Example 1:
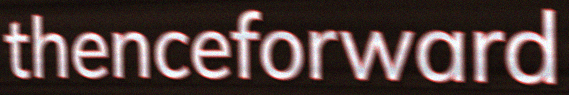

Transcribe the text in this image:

thenceforward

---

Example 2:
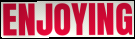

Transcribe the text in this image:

ENJOYING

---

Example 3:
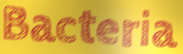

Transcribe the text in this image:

Bacteria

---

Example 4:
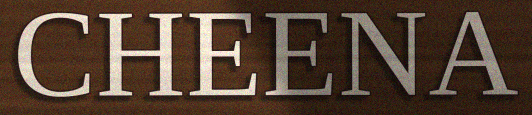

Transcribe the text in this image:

CHEENA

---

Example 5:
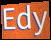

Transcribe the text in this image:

Edy